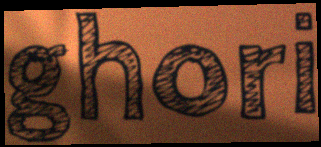
ghori